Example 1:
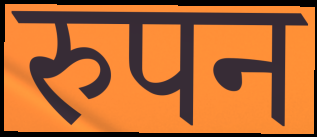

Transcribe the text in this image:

रुपन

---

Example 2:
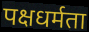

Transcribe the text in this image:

पक्षधर्मता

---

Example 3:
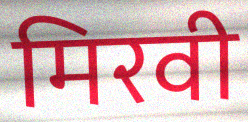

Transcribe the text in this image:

मिरवी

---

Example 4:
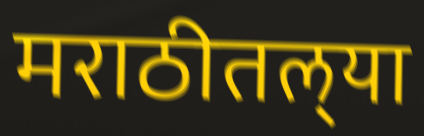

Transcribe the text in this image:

मराठीतल्या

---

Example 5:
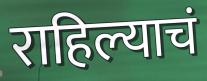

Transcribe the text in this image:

राहिल्याचं